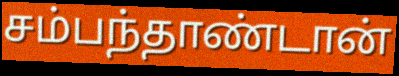
சம்பந்தாண்டான்